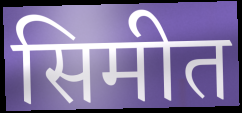
सिमीत